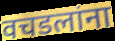
वचडलांना